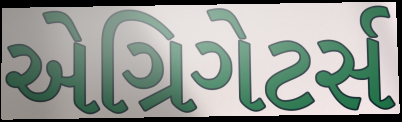
એગ્રિગેટર્સ